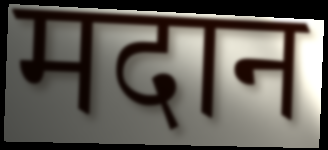
मदान